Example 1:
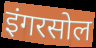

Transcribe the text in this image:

इंगरसोल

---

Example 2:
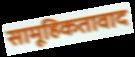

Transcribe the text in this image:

सामूहिकतावाद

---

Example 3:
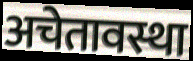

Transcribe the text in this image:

अचेतावस्था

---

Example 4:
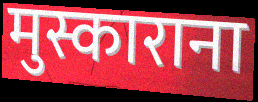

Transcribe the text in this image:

मुस्काराना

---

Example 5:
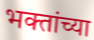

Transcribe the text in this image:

भक्तांच्या